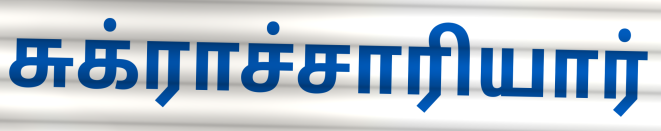
சுக்ராச்சாரியார்